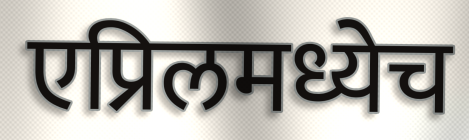
एप्रिलमध्येच